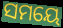
ସମୟେ